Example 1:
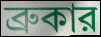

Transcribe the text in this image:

ব্রুকার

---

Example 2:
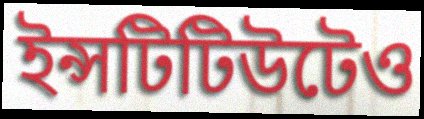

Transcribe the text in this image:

ইন্সটিটিউটেও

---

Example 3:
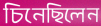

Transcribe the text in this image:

চিনেছিলেন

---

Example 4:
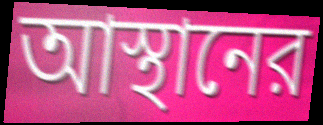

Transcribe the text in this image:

আস্থানের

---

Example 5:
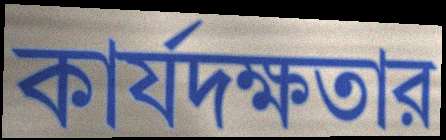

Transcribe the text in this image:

কার্যদক্ষতার